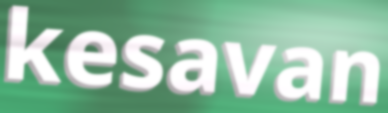
kesavan